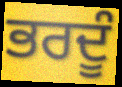
ਭਰਦੂੰ